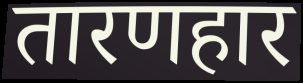
तारणहार